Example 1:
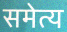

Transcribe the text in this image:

समेत्य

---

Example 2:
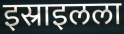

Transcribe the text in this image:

इस्राइलला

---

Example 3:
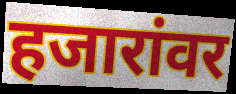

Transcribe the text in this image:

हजारांवर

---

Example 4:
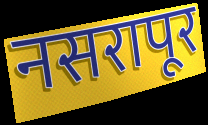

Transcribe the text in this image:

नसरापूर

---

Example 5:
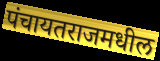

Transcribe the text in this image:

पंचायतराजमधील